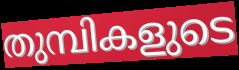
തുമ്പികളുടെ